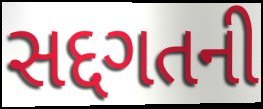
સદ્દગતની